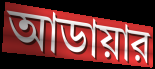
আডায়ার